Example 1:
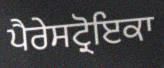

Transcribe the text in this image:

ਪੈਰੇਸਟ੍ਰੋਇਕਾ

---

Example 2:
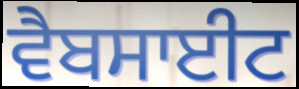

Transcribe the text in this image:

ਵੈਬਸਾਈਟ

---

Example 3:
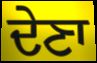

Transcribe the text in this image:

ਦੇਣਾ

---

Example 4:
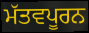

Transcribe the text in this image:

ਮੱਤਵਪੂਰਨ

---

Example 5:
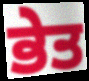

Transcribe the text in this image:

ਭੇਤ